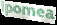
Ipomea